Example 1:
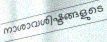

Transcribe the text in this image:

നാശാവശിഷ്ടങ്ങളുടെ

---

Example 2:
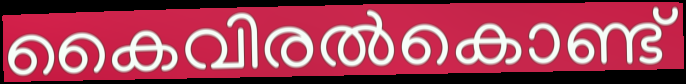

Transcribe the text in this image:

കൈവിരൽകൊണ്ട്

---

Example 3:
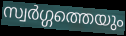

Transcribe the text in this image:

സ്വർഗ്ഗത്തെയും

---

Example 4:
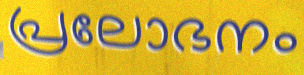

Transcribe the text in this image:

പ്രലോഭനം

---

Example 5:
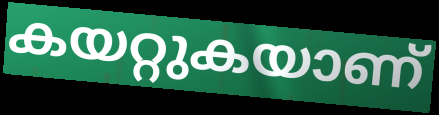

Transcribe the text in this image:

കയറ്റുകയാണ്